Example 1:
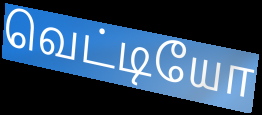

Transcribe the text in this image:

வெட்டியோ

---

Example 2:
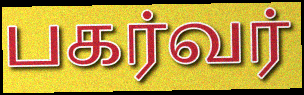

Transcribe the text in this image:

பகர்வர்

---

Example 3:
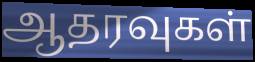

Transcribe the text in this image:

ஆதரவுகள்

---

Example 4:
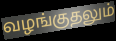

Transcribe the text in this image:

வழங்குதலும்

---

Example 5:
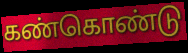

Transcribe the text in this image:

கண்கொண்டு